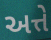
અત્તે